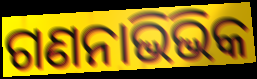
ଗଣନାଭିଭିକ